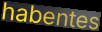
habentes